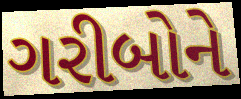
ગરીબોને